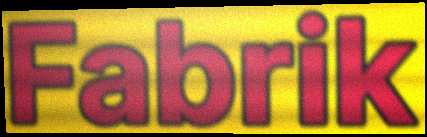
Fabrik